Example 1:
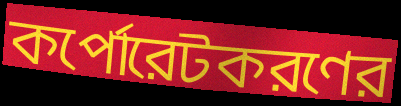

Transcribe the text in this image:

কর্পোরেটকরণের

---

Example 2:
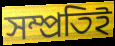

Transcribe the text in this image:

সম্প্রতিই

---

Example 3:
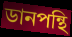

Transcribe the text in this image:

ডানপন্থি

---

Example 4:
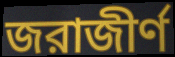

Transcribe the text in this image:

জরাজীর্ণ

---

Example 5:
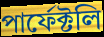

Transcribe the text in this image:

পার্ফেক্টলি